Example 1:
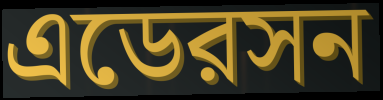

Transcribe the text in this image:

এডেরসন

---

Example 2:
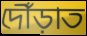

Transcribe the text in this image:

দৌঁড়াত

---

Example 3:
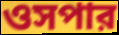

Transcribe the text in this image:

ওসপার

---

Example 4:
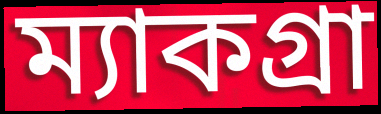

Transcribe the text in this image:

ম্যাকগ্রা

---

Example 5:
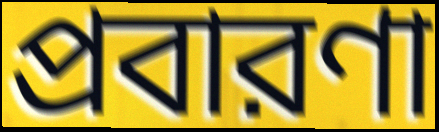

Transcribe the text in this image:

প্রবারণা